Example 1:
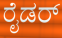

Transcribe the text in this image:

ರೈಡರ್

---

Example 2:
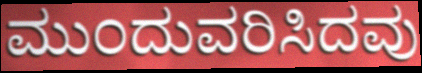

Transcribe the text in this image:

ಮುಂದುವರಿಸಿದವು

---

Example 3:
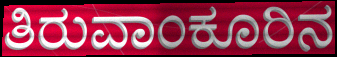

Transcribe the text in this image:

ತಿರುವಾಂಕೂರಿನ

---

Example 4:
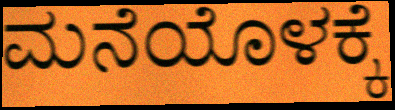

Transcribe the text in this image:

ಮನೆಯೊಳಕ್ಕೆ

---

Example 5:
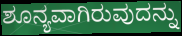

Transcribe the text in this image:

ಶೂನ್ಯವಾಗಿರುವುದನ್ನು